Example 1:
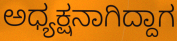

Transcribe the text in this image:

ಅಧ್ಯಕ್ಷನಾಗಿದ್ದಾಗ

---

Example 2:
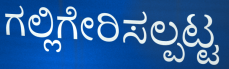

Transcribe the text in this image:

ಗಲ್ಲಿಗೇರಿಸಲ್ಪಟ್ಟ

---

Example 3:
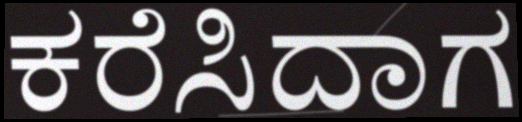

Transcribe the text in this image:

ಕರೆಸಿದಾಗ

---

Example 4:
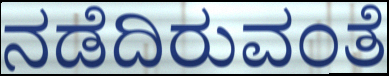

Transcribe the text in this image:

ನಡೆದಿರುವಂತೆ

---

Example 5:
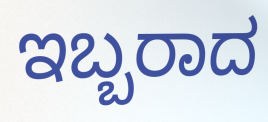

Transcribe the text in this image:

ಇಬ್ಬರಾದ